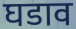
घडाव